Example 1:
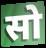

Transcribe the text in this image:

सो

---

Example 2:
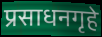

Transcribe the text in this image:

प्रसाधनगृहे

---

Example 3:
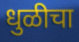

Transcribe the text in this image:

धुळीचा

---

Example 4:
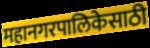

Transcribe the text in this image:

महानगरपालिकेसाठी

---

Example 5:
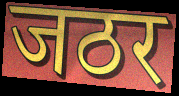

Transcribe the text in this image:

जठर